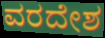
ವರದೇಶ